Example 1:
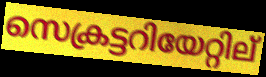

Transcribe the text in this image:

സെക്രട്ടറിയേറ്റില്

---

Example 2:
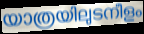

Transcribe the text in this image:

യാത്രയിലുടനീളം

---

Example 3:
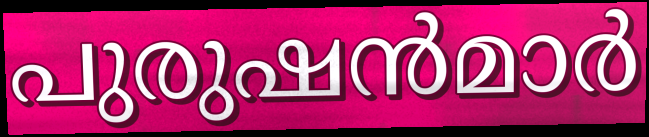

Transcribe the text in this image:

പുരുഷൻമാർ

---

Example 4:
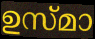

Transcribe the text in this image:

ഉസ്മാ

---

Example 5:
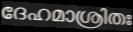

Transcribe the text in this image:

ദേഹമാശ്രിതഃ